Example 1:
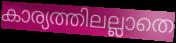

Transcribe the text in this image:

കാര്യത്തിലല്ലാതെ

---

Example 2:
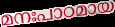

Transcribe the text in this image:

മനഃപാഠമായ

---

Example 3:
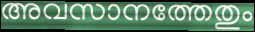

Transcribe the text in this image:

അവസാനത്തേതും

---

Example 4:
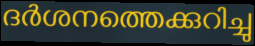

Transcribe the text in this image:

ദർശനത്തെക്കുറിച്ചു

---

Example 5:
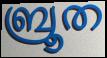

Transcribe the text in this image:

ബ്രൂത